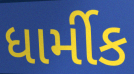
ધાર્મીક